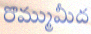
రొమ్ముమీద